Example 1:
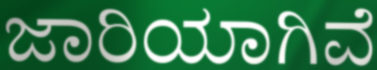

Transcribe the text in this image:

ಜಾರಿಯಾಗಿವೆ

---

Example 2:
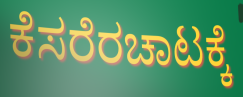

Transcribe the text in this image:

ಕೆಸರೆರಚಾಟಕ್ಕೆ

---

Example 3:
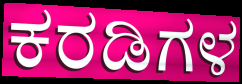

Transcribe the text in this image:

ಕರಡಿಗಳ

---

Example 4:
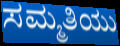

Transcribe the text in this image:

ಸಮ್ಮತಿಯು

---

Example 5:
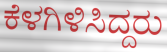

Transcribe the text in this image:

ಕೆಳಗಿಳಿಸಿದ್ದರು